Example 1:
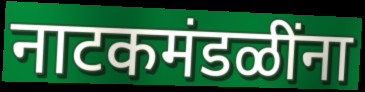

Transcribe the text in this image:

नाटकमंडळींना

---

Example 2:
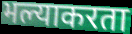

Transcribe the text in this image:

भल्याकरता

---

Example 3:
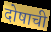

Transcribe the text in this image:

दोषाची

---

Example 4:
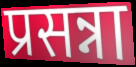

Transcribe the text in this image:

प्रसन्ना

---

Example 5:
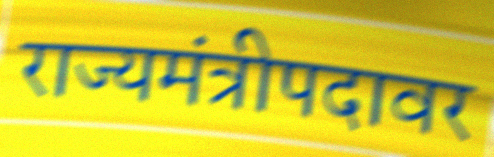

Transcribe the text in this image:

राज्यमंत्रीपदावर